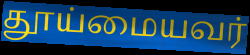
தூய்மையவர்